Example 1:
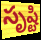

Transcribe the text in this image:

సృష్టి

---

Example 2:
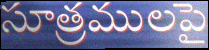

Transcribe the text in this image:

సూత్రములపై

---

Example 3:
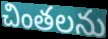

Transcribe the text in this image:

చింతలను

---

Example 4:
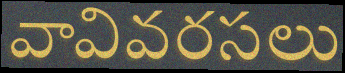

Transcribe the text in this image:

వావివరసలు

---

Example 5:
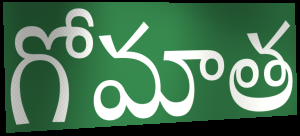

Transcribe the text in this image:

గోమాత